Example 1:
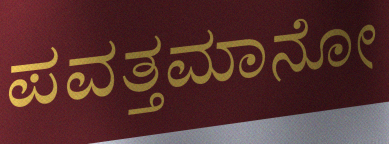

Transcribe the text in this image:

ಪವತ್ತಮಾನೋ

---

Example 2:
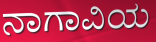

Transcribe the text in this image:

ನಾಗಾವಿಯ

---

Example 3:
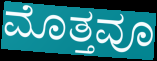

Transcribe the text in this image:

ಮೊತ್ತವೂ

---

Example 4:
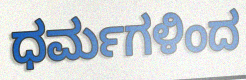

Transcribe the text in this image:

ಧರ್ಮಗಳಿಂದ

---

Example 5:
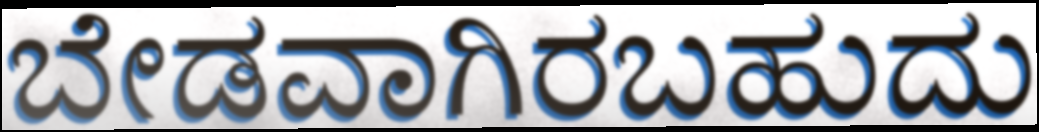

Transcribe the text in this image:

ಬೇಡವಾಗಿರಬಹುದು